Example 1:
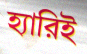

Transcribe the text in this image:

হ্যারিই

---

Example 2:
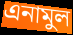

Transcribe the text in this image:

এনামুল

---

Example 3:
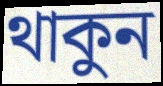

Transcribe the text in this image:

থাকুন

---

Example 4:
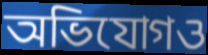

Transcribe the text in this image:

অভিযোগও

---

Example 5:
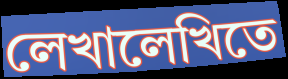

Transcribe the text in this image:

লেখালেখিতে